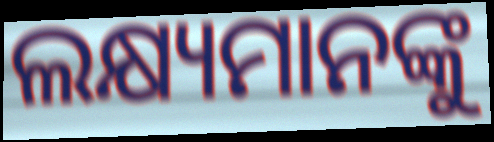
ଲକ୍ଷ୍ୟମାନଙ୍କୁ